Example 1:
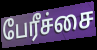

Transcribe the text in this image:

பேரீச்சை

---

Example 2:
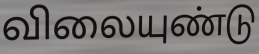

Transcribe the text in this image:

விலையுண்டு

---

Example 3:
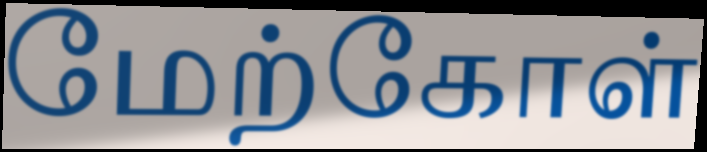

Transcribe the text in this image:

மேற்கோள்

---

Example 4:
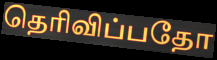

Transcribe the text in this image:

தெரிவிப்பதோ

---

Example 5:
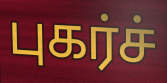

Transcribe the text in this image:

புகர்ச்